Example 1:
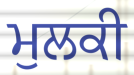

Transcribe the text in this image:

ਮੁਲਕੀ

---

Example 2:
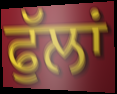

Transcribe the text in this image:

ਫੁੱਲਾਂ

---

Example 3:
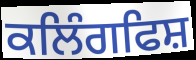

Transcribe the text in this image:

ਕਲਿੰਗਫਿਸ਼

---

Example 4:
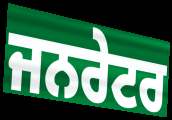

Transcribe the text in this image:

ਜਨਰੇਟਰ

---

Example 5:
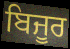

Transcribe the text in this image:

ਬਿਜੂਰ